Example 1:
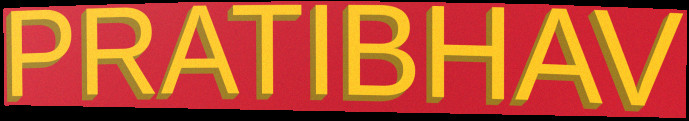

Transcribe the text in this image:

PRATIBHAV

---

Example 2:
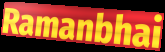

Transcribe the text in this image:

Ramanbhai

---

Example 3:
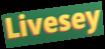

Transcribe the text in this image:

Livesey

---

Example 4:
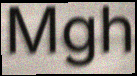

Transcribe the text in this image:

Mgh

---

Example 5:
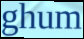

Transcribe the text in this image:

ghum